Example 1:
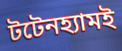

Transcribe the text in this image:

টটেনহ্যামই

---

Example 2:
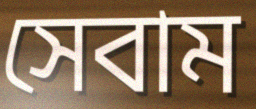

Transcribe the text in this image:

সেবাম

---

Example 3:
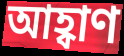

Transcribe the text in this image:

আহ্বাণ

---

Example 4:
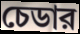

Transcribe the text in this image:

চেডার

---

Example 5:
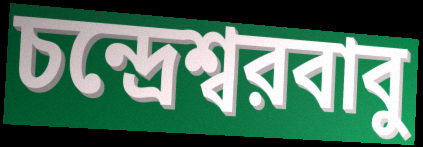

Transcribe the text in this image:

চন্দ্রেশ্বরবাবু